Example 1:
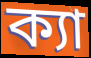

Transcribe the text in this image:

ক্যা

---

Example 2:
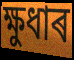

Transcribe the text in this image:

ক্ষুধাৰ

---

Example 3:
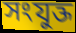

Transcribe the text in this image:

সংযুক্ত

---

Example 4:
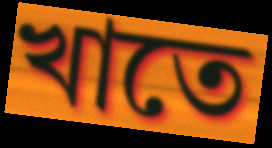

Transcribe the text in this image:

খাতে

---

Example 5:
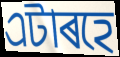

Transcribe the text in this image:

এটাৰহে